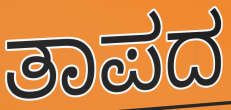
ತಾಪದ